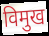
विमुख